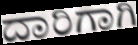
ದಾರಿಗಾಗಿ